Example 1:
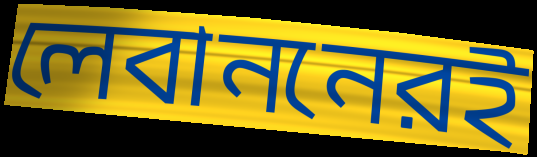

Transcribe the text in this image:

লেবাননেরই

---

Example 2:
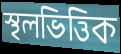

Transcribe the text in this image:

স্থলভিত্তিক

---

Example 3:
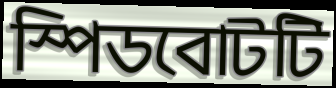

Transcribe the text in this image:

স্পিডবোটটি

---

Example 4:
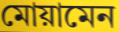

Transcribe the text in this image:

মোয়ামেন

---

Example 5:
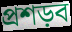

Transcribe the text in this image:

প্রশড়ব